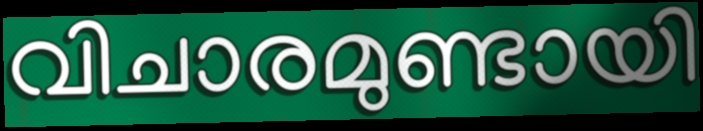
വിചാരമുണ്ടായി